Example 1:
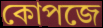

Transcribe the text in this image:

কোপজে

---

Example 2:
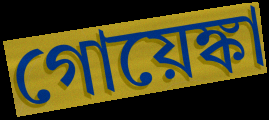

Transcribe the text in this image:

গোয়েঙ্কা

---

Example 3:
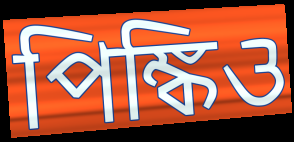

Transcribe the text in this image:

পিঙ্কিও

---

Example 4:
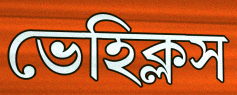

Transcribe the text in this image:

ভেহিক্লস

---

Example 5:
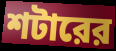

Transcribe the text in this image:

শটারের